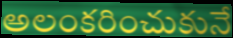
అలంకరించుకునే